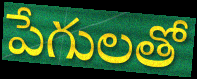
పేగులతో